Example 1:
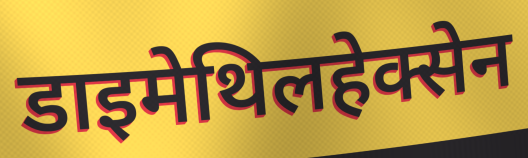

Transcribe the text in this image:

डाइमेथिलहेक्सेन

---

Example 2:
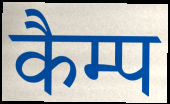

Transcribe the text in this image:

कैम्प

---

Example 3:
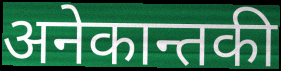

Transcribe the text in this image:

अनेकान्तकी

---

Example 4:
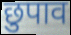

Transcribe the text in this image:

छुपाव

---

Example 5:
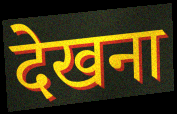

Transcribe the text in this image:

देखना